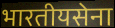
भारतीयसेना